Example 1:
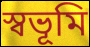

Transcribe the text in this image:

স্বভূমি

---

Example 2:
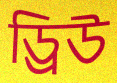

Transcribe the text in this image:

ড্রিউ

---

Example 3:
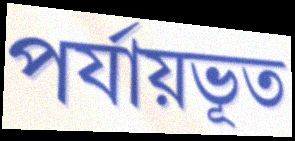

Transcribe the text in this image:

পর্যায়ভূত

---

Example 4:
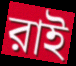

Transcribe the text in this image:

রাই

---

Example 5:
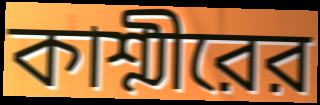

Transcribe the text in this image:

কাশ্মীরের